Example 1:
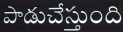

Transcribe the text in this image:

పాడుచేస్తుంది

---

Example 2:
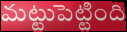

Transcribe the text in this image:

మట్టుపెట్టింది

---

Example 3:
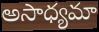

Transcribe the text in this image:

అసాధ్యమా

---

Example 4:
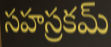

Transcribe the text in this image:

సహస్రకమ్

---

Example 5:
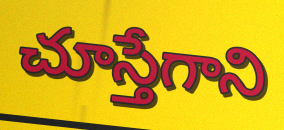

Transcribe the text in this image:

చూస్తేగాని